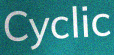
Cyclic